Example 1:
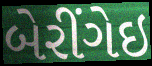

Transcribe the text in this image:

બેરીંગેઇ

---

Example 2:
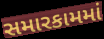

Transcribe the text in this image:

સમારકામમાં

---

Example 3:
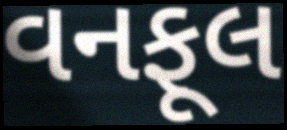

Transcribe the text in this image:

વનફૂલ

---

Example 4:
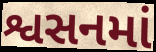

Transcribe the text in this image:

શ્વસનમાં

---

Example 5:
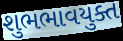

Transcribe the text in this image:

શુભભાવયુક્ત